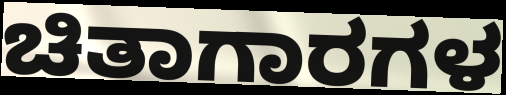
ಚಿತಾಗಾರಗಳ